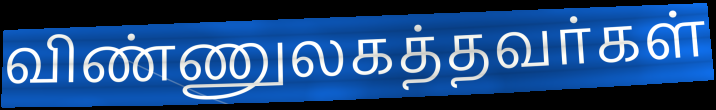
விண்ணுலகத்தவர்கள்